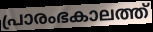
പ്രാരംഭകാലത്ത്